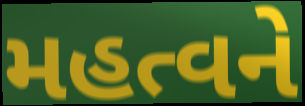
મહત્વને